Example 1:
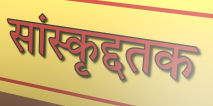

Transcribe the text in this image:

सांस्कृद्दतक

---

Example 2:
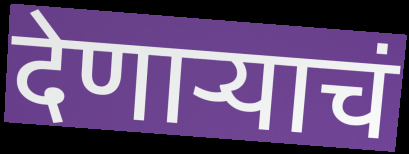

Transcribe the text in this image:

देणाऱ्याचं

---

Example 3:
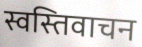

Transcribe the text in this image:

स्वस्तिवाचन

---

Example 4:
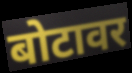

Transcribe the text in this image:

बोटावर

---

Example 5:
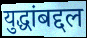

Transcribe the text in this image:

युद्धांबद्दल